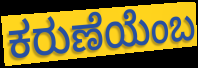
ಕರುಣೆಯೆಂಬ